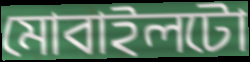
মোবাইলটো